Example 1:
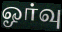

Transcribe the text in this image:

ஓர்வு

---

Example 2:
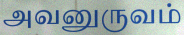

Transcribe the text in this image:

அவனுருவம்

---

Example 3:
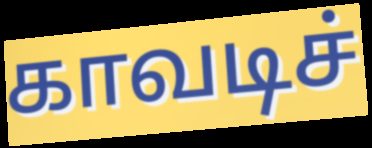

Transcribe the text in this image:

காவடிச்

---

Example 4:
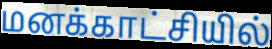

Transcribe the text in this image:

மனக்காட்சியில்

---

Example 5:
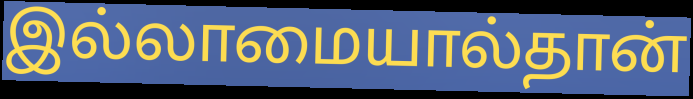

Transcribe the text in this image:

இல்லாமையால்தான்